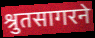
श्रुतसागरने